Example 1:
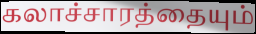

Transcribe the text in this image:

கலாச்சாரத்தையும்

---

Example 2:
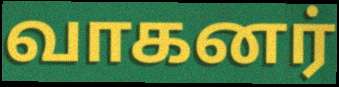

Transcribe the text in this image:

வாகனர்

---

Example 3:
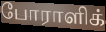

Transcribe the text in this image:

போராளிக்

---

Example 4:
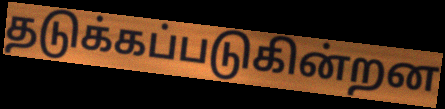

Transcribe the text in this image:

தடுக்கப்படுகின்றன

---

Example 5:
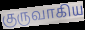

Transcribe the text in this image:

குருவாகிய